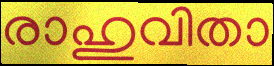
രാഹുവിതാ